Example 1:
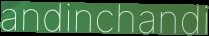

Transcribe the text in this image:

andinchandi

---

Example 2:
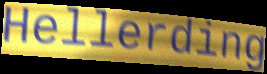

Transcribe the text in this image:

Hellerding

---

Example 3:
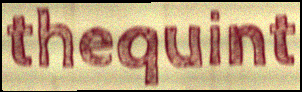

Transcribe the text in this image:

thequint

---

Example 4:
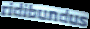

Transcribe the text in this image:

ridibundus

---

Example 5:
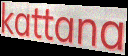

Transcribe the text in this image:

kattana